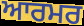
ਆਰਮਰ